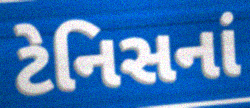
ટેનિસનાં